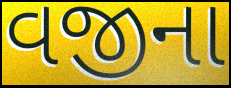
વજીના